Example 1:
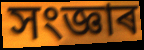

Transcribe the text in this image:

সংজ্ঞাৰ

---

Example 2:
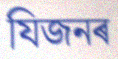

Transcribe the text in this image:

যিজনৰ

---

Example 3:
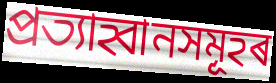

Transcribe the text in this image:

প্ৰত্যাহ্বানসমূহৰ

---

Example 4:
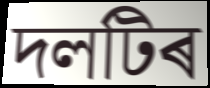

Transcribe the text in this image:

দলটিৰ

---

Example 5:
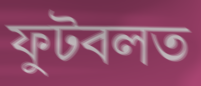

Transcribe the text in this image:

ফুটবলত